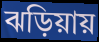
ঝড়িয়ায়